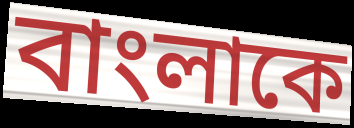
বাংলাকে